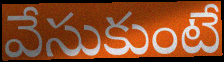
వేసుకుంటే